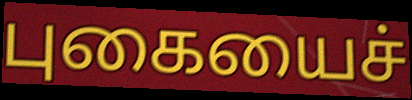
புகையைச்